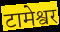
टामेश्वर